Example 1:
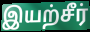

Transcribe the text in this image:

இயற்சீர்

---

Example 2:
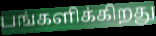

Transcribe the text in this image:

பங்களிக்கிறது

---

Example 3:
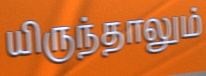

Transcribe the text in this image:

யிருந்தாலும்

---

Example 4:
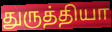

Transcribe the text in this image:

துருத்தியா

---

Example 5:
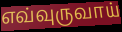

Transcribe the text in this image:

எவ்வுருவாய்